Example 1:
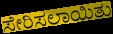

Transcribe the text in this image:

ಸೇರಿಸಲಾಯಿತು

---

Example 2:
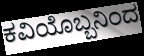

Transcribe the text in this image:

ಕವಿಯೊಬ್ಬನಿಂದ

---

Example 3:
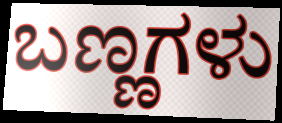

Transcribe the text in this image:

ಬಣ್ಣಗಳು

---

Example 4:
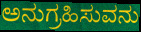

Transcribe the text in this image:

ಅನುಗ್ರಹಿಸುವನು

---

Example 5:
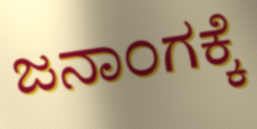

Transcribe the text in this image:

ಜನಾಂಗಕ್ಕೆ